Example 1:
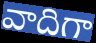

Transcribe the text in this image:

వాదిగా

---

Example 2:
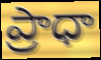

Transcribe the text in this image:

ప్రాధా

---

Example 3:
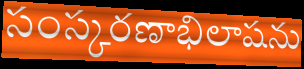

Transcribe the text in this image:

సంస్కరణాభిలాషను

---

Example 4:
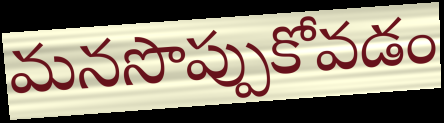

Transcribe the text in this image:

మనసొప్పుకోవడం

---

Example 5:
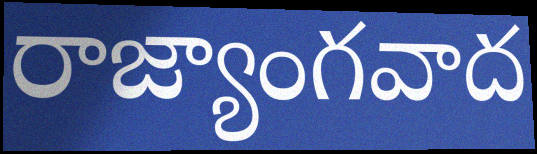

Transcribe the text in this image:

రాజ్యాంగవాద